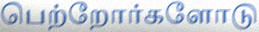
பெற்றோர்களோடு